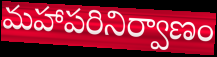
మహాపరినిర్వాణం